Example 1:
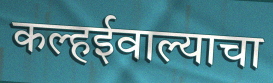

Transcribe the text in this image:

कल्हईवाल्याचा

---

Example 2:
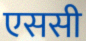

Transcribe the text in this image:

एससी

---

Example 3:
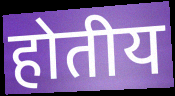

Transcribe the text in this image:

होतीय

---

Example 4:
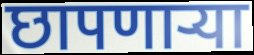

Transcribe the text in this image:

छापणाऱ्या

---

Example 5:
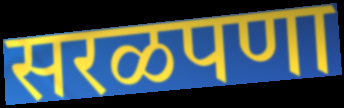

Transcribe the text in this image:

सरळपणा